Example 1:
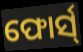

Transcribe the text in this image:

ଫୋର୍ସ୍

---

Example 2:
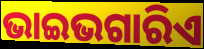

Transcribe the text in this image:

ଭାଇଭଗାରିଏ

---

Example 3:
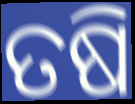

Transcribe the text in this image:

ତଷି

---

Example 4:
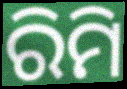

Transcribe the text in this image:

ରିମି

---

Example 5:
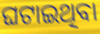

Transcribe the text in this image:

ଘଟାଇଥିବା